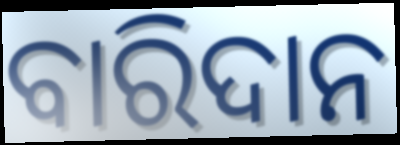
ବାରିଦାନ